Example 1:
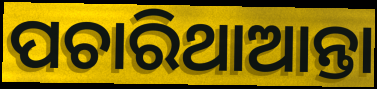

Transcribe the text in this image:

ପଚାରିଥାଆନ୍ତା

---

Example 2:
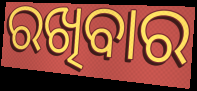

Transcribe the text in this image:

ରଖିବାର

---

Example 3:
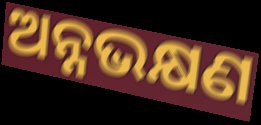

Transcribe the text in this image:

ଅନ୍ନଭକ୍ଷଣ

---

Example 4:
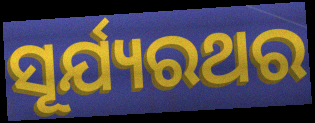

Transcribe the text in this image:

ସୂର୍ଯ୍ୟରଥର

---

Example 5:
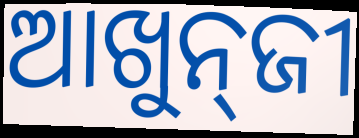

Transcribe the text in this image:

ଆଖୁନ୍‍ଜୀ